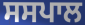
ਸਸਪਾਲ